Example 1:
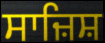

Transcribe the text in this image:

ਸਾਜ਼ਿਸ਼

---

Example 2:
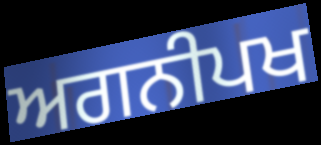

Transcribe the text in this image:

ਅਗਨੀਪਖ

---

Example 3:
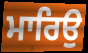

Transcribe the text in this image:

ਮਾਰਿਉ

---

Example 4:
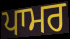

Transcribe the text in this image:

ਪਾਮਰ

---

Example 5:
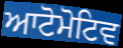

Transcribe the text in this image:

ਆਟੋਮੋਟਿਵ